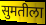
सुमतीला